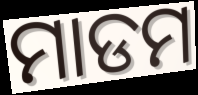
ମାଡମ